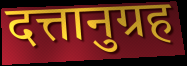
दत्तानुग्रह